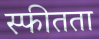
स्फीतता